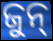
ଜୁନ୍